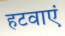
हटवाएं